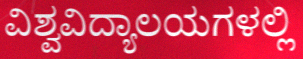
ವಿಶ್ವವಿದ್ಯಾಲಯಗಳಲ್ಲಿ